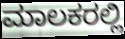
ಮಾಲಕರಲ್ಲಿ